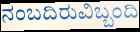
ನಂಬದಿರುವಿಬ್ಬಂದಿ